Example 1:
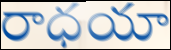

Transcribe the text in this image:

రాధయా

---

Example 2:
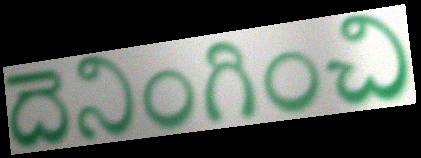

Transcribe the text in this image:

దెనింగించి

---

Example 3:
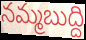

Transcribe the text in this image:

నమ్మబుద్ది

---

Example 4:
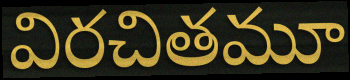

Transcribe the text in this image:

విరచితమూ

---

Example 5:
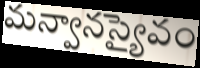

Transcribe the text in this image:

మన్వానస్యైవం